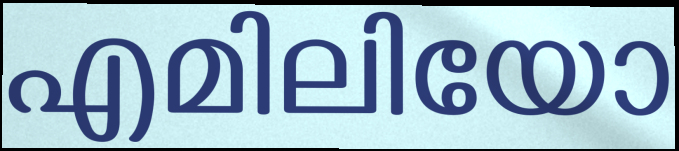
എമിലിയോ